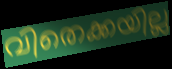
വിതെക്കയില്ല